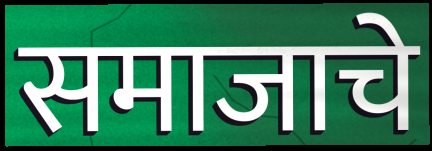
समाजाचे